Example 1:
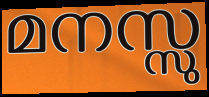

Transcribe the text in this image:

മനസ്സു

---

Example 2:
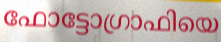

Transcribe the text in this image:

ഫോട്ടോഗ്രാഫിയെ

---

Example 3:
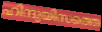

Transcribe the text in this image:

ഹിന്ദുയിസത്തെ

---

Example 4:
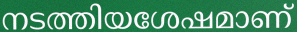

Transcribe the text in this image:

നടത്തിയശേഷമാണ്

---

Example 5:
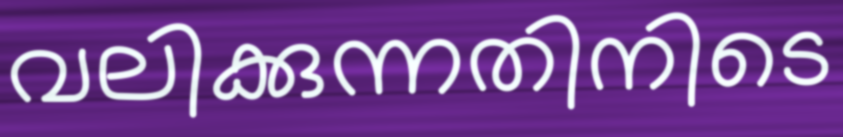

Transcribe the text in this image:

വലിക്കുന്നതിനിടെ